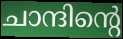
ചാന്ദിന്റെ